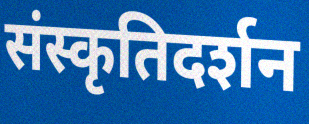
संस्कृतिदर्शन